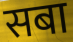
सबा